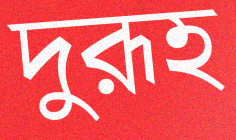
দুরূহ